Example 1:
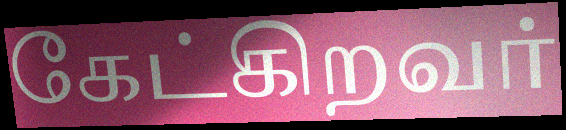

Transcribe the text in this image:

கேட்கிறவர்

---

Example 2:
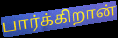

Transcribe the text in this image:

பார்க்கிறான்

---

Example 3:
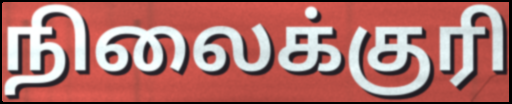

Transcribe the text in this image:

நிலைக்குரி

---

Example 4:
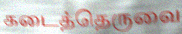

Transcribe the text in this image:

கடைத்தெருவை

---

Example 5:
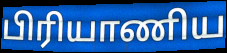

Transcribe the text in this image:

பிரியாணிய